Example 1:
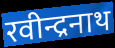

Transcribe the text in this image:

रवीन्द्रनाथ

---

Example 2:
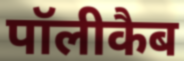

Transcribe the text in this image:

पॉलीकैब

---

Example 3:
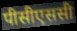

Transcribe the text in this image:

पीसीएससी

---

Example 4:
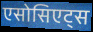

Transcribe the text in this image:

एसोसिएट्स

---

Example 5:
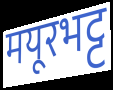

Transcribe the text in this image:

मयूरभट्ट